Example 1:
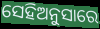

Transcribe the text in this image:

ସେହିଅନୁସାରେ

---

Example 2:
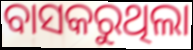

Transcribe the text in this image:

ବାସକରୁଥିଲା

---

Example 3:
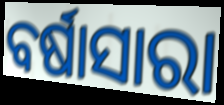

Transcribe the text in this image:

ବର୍ଷାସାରା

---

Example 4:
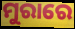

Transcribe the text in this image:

ମୁରାରେ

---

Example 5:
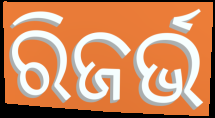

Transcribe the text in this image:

ରିଜର୍ଭ